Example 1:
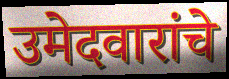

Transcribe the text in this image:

उमेदवारांचे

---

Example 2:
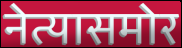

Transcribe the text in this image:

नेत्यासमोर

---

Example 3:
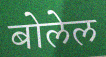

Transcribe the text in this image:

बोलेल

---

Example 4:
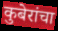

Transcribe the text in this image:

कुबेरांचा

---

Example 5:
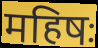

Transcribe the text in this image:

महिषः